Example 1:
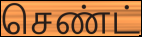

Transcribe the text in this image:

செண்ட்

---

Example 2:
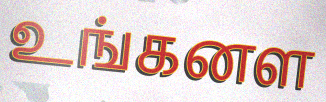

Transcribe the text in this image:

உங்கனள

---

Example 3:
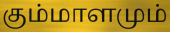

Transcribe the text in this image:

கும்மாளமும்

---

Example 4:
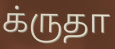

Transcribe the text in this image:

க்ருதா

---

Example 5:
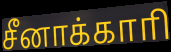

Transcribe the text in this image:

சீனாக்காரி